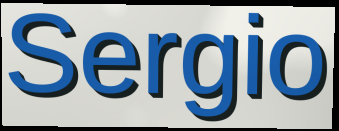
Sergio